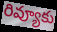
రివ్యూకు